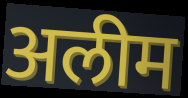
अलीम